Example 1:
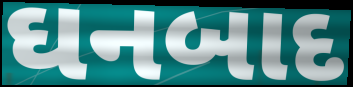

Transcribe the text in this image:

ઘનબાદ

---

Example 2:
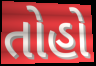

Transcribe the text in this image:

તોહો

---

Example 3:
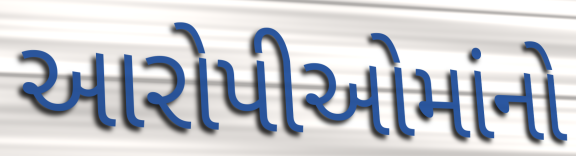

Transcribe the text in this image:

આરોપીઓમાંનો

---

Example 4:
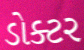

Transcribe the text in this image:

ડોક્ટર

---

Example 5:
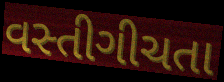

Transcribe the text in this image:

વસ્તીગીચતા